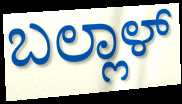
ಬಲ್ಲಾಳ್